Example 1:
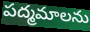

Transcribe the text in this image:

పద్మమాలను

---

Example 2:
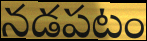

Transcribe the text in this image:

నడపటం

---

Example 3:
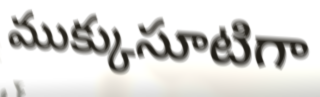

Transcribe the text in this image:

ముక్కుసూటిగా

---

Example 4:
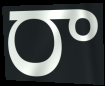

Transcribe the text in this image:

రా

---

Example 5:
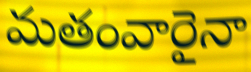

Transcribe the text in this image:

మతంవారైనా